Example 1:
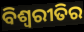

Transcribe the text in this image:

ବିଶ୍ଵରୀତିର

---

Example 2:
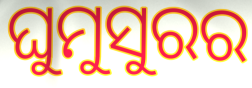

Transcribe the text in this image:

ଘୁମୁସୁରର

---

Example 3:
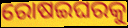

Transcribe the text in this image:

ରୋଷଇଘରକୁ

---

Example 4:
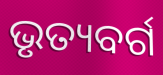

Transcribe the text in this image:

ଭୃତ୍ୟବର୍ଗ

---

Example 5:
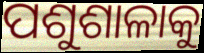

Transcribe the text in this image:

ପଶୁଶାଳାକୁ